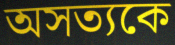
অসত্যকে